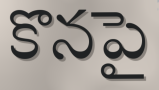
కొనపై